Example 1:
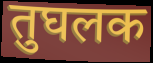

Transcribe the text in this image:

तुघलक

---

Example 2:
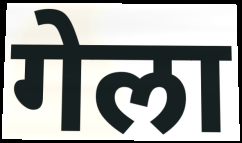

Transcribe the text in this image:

गेला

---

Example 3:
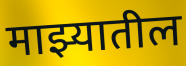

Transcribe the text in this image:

माझ्यातील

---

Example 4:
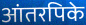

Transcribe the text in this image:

आंतरपिके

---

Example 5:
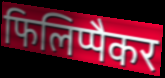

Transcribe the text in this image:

फिलिप्पैकर